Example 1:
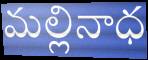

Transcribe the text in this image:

మల్లినాధ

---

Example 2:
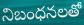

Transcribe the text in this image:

నిబంధనలతో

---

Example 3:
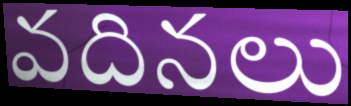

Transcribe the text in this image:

వదినలు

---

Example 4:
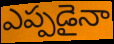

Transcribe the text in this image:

ఎప్పడైనా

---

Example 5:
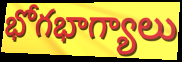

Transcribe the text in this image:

భోగభాగ్యాలు